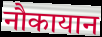
नौकायान